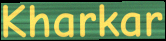
Kharkar